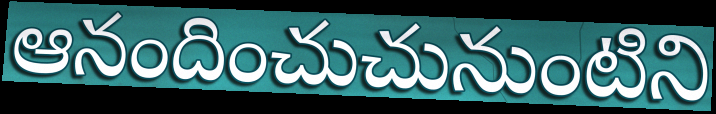
ఆనందించుచునుంటిని